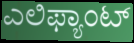
ಎಲಿಫ್ಯಾಂಟ್